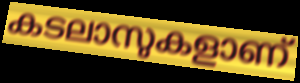
കടലാസുകളാണ്